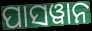
ପାସୱାନ